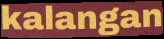
kalangan